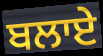
ਬਲਾਏ